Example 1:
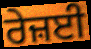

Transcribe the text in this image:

ਰੇਜ਼ਈ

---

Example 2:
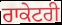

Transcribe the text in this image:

ਰਾਕੇਟਰੀ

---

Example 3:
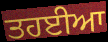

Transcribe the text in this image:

ਤਹਈਆ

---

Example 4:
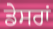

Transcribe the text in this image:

ਡੇਸਰਾਂ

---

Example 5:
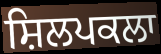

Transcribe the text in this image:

ਸ਼ਿਲਪਕਲਾ